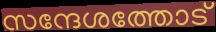
സന്ദേശത്തോട്